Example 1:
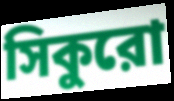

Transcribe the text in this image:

সিকুরো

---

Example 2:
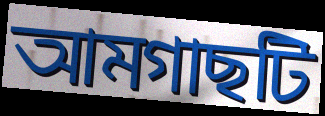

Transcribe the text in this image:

আমগাছটি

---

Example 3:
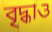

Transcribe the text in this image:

বৃদ্ধাও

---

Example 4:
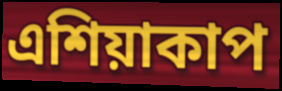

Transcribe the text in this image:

এশিয়াকাপ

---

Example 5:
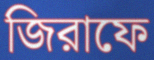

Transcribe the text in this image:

জিরাফে